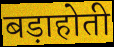
बड़ाहोती